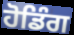
ਹੋਡਿੰਗ